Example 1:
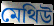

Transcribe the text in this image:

মেথিউ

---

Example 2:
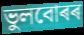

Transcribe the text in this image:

ভুলবোৰৰ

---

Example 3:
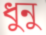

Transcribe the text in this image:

ধুনু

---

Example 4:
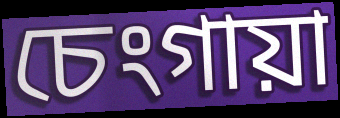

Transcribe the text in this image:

চেংগায়া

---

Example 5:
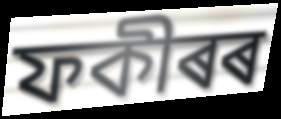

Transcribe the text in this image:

ফকীৰৰ